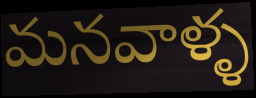
మనవాళ్ళ